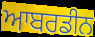
ਆਬਰਡੀਨ